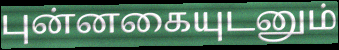
புன்னகையுடனும்